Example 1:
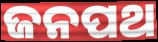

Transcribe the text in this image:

ଜନପଥ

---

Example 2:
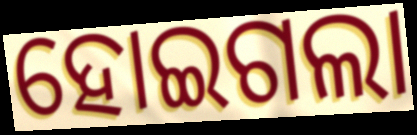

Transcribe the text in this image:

ହୋଇଗଲା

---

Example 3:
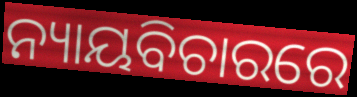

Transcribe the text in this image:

ନ୍ୟାୟବିଚାରରେ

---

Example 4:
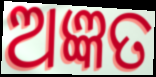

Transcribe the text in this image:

ଅଜ୍ଞତ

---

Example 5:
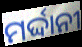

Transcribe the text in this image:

ମର୍ଦ୍ଦାନୀ